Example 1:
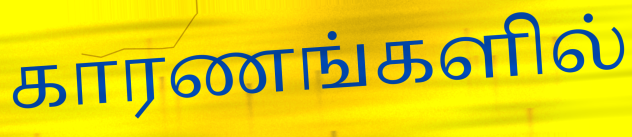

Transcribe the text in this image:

காரணங்களில்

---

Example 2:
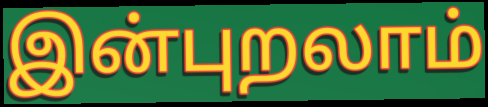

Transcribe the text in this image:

இன்புறலாம்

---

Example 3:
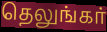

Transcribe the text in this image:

தெலுங்கர்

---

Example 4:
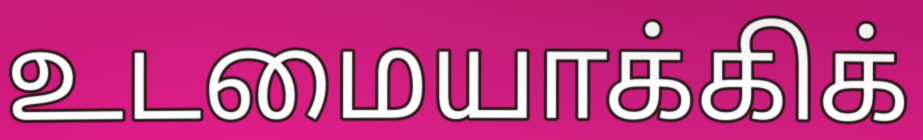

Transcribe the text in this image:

உடமையாக்கிக்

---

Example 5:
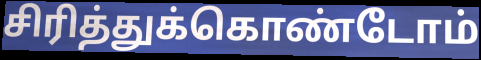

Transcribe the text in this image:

சிரித்துக்கொண்டோம்